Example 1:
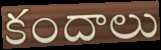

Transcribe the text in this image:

కందాలు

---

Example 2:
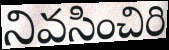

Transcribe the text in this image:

నివసించిరి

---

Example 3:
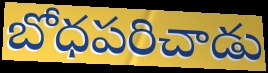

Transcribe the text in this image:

బోధపరిచాడు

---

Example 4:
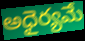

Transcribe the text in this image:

అధైర్యమే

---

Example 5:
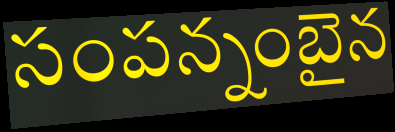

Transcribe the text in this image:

సంపన్నంబైన